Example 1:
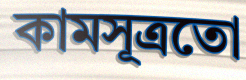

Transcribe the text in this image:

কামসূত্ৰতো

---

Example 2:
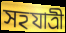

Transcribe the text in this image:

সহযাত্ৰী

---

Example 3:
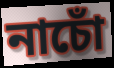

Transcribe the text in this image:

নাচোঁ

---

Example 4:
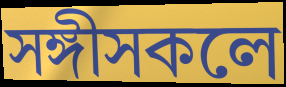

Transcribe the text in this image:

সঙ্গীসকলে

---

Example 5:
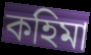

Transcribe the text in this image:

কহিমা